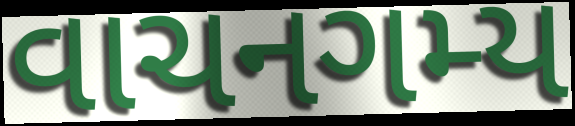
વાચનગમ્ય